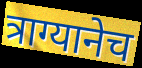
त्राग्यानेच